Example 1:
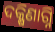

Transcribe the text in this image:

ଦକ୍ଷିଣାଗ୍ନି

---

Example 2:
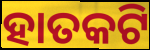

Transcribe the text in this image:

ହାତକଟି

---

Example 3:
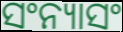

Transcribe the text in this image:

ସଂନ୍ୟାସଂ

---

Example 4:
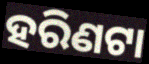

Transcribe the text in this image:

ହରିଣଟା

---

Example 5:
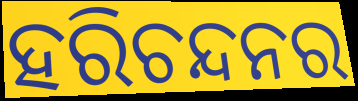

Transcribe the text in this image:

ହରିଚନ୍ଦନର